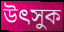
উৎসুক